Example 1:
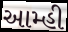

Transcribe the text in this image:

આમ્હી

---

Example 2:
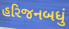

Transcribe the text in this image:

હરિજનબધું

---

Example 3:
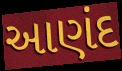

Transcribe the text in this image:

આણંદ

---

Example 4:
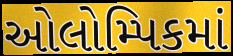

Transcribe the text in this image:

ઓલોમ્પિકમાં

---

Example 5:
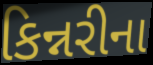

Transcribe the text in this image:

કિન્નરીના